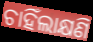
ଚାହିଁଲାକ୍ଷଣି